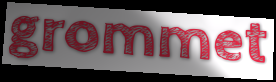
grommet